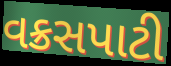
વક્રસપાટી